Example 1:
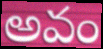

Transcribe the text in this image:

అవం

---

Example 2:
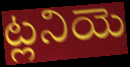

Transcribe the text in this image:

ట్లనియె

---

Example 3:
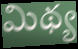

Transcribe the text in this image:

మిథ్య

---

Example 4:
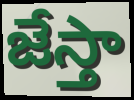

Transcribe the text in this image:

జేస్తా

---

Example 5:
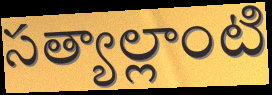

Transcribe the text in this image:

సత్యాల్లాంటి